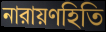
নারায়ণহিতি